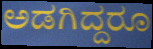
ಅಡಗಿದ್ದರೂ